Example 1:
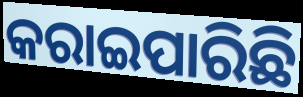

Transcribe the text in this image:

କରାଇପାରିଛି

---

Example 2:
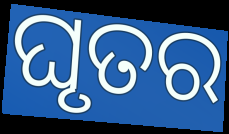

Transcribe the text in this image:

ଘୃତର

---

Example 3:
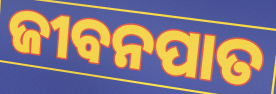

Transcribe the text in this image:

ଜୀବନପାତ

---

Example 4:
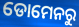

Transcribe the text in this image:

ଡୋମେନରୁ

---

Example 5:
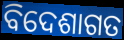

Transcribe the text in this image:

ବିଦେଶାଗତ